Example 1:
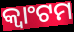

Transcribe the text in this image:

କ୍ୱାଂଟମ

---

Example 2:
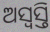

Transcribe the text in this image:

ଅସ୍ୱସ୍ତି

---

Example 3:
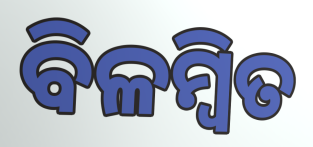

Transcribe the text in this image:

ବିଳମ୍ବିତ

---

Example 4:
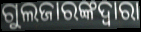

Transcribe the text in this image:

ଗୁଲଜାରଙ୍କଦ୍ୱାରା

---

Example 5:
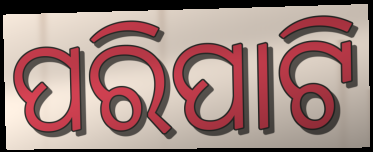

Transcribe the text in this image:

ପରିପାଟି